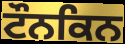
ਟੌਨਕਿਨ